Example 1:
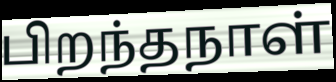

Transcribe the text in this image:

பிறந்தநாள்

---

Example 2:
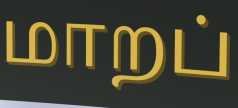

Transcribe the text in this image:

மாறப்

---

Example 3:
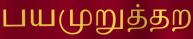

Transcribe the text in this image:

பயமுறுத்தற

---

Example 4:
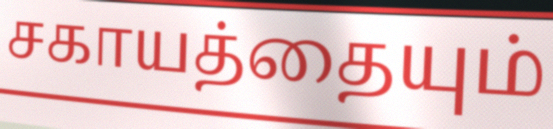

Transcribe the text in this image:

சகாயத்தையும்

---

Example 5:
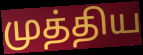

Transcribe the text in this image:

முத்திய